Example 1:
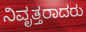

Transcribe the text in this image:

ನಿವೃತ್ತರಾದರು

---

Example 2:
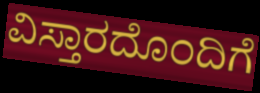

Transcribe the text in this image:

ವಿಸ್ತಾರದೊಂದಿಗೆ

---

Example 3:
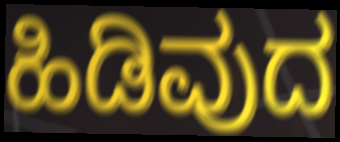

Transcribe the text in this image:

ಹಿಡಿವುದ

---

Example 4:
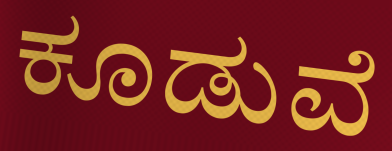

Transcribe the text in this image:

ಕೂಡುವೆ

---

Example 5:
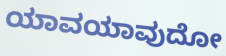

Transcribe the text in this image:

ಯಾವಯಾವುದೋ